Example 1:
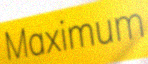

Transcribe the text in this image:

Maximum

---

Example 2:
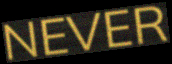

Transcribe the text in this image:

NEVER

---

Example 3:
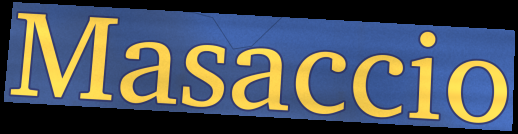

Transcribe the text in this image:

Masaccio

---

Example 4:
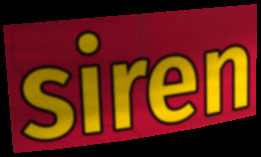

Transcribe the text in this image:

siren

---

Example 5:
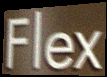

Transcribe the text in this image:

Flex